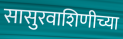
सासुरवाशिणीच्या